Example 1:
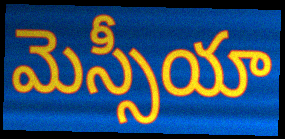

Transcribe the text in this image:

మెస్సీయా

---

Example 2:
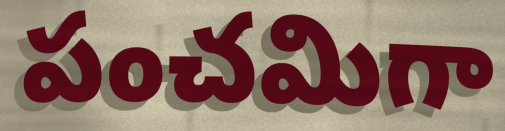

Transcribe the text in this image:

పంచమిగా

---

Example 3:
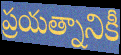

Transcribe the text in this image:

ప్రయత్నానికీ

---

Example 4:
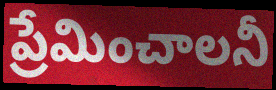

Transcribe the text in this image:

ప్రేమించాలనీ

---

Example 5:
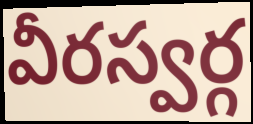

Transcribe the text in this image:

వీరస్వర్గ